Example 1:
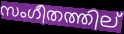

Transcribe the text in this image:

സംഗീതത്തില്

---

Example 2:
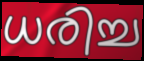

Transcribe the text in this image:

ധരിച്ച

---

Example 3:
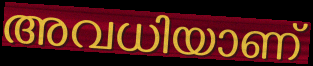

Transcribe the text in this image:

അവധിയാണ്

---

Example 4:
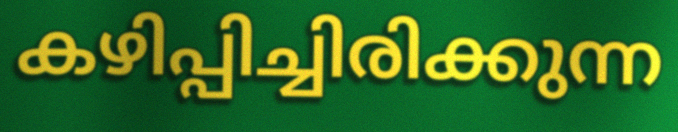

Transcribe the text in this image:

കഴിപ്പിച്ചിരിക്കുന്ന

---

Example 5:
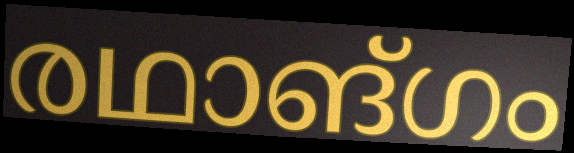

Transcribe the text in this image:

രഥാങ്ഗം